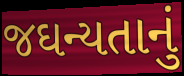
જઘન્યતાનું